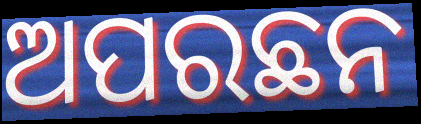
ଅପରଛନ